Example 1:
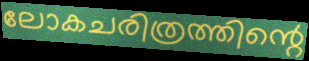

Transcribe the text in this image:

ലോകചരിത്രത്തിന്റെ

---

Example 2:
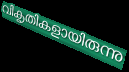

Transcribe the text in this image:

വികൃതികളായിരുന്നു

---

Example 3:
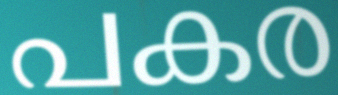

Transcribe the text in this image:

പകര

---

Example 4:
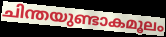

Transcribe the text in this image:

ചിന്തയുണ്ടാകമൂലം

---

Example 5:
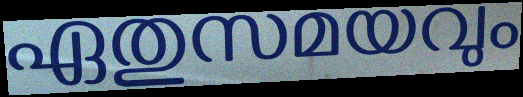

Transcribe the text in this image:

ഏതുസമയവും